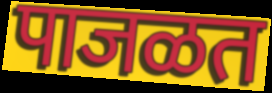
पाजळत